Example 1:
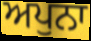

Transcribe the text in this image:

ਅਪੁਨਾ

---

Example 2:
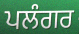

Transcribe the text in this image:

ਪਲੰਗਰ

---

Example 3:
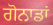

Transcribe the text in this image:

ਗੋਨਾਡਾਂ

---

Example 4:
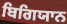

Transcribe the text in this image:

ਬਿਗਿਯਾਨ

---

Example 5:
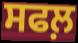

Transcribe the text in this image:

ਸਫਲ਼